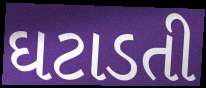
ઘટાડતી